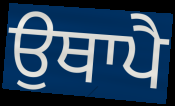
ਉਥਾਪੈ